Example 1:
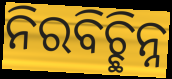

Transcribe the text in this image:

ନିରବିଚ୍ଛିନ୍ନ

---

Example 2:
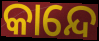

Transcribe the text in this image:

କାନ୍ଦେ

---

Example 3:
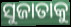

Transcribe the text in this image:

ସୁଜାତାକୁ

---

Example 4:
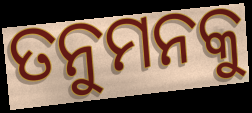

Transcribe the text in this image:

ତନୁମନକୁ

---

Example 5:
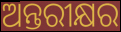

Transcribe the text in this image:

ଅନ୍ତରୀକ୍ଷର